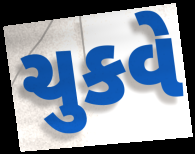
ચુકવે